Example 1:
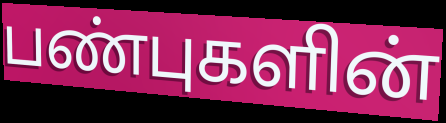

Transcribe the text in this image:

பண்புகளின்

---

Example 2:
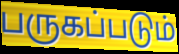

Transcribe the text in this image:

பருகப்படும்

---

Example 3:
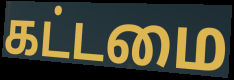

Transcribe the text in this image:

கட்டமை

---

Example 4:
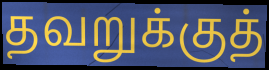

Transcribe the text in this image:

தவறுக்குத்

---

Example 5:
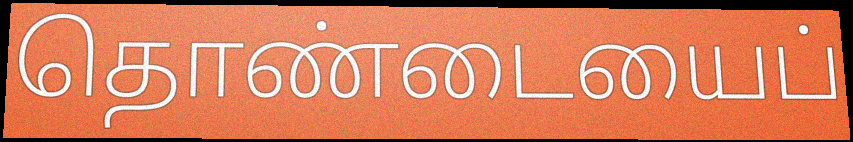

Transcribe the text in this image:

தொண்டையைப்